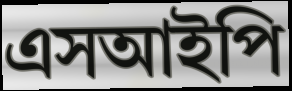
এসআইপি